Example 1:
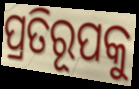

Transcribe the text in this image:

ପ୍ରତିରୂପକୁ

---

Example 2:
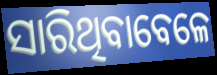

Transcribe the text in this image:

ସାରିଥିବାବେଳେ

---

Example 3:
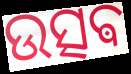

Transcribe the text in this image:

ଉତ୍ସଵ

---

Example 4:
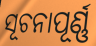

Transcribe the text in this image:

ସୂଚନାପୂର୍ଣ୍ଣ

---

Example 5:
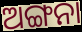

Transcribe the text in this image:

ଅଙ୍ଗନା